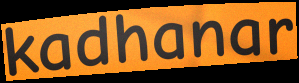
kadhanar